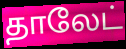
தாலேட்